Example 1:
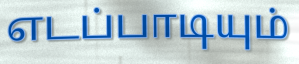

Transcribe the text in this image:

எடப்பாடியும்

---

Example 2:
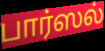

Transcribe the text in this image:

பார்ஸல்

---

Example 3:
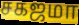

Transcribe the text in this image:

சகஜமா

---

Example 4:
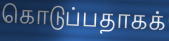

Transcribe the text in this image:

கொடுப்பதாகக்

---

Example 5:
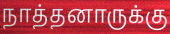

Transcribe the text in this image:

நாத்தனாருக்கு